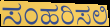
ಸಂಹರಿಸಲಿ